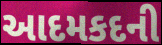
આદમકદની